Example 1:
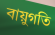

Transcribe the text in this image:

বায়ুগতি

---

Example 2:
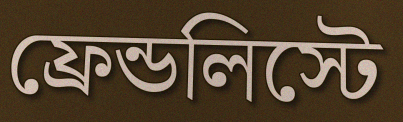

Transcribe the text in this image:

ফ্রেন্ডলিস্টে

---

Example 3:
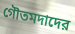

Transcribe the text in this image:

গৌতমদাদের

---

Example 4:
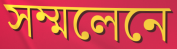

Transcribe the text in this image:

সম্মলেনে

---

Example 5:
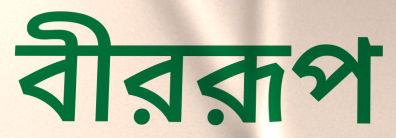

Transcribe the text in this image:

বীররূপ